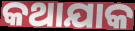
କଥାଯାକ